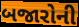
બજારોની